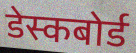
डेस्कबोर्ड